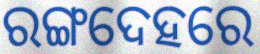
ରଙ୍ଗଦେହରେ